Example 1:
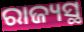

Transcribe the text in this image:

ରାଜ୍ୟସ୍ଥ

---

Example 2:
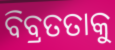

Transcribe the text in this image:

ବିବ୍ରତତାକୁ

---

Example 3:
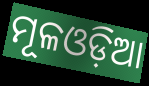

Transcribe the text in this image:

ମୂଳଓଡ଼ିଆ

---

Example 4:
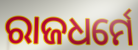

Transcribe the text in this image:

ରାଜଧର୍ମେ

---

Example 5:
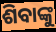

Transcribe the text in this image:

ଶିବାଙ୍କୁ